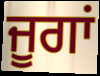
ਜੂਗਾਂ